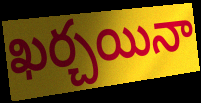
ఖర్చయినా